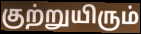
குற்றுயிரும்